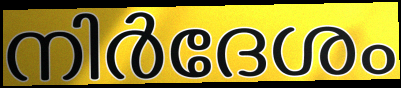
നിർദേശം